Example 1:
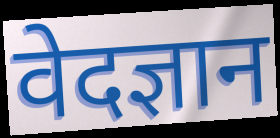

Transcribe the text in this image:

वेदज्ञान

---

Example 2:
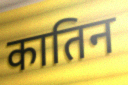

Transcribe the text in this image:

कातिन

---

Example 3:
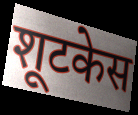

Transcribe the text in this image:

शूटकेस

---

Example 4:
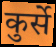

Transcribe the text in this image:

कुर्से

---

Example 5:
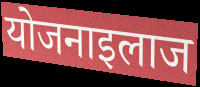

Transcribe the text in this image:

योजनाइलाज